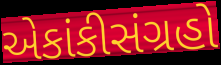
એકાંકીસંગ્રહો